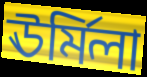
ঊর্মিলা